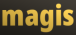
magis